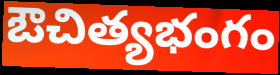
ఔచిత్యభంగం